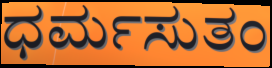
ಧರ್ಮಸುತಂ